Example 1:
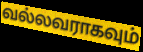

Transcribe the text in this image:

வல்லவராகவும்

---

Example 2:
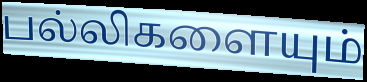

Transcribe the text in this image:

பல்லிகளையும்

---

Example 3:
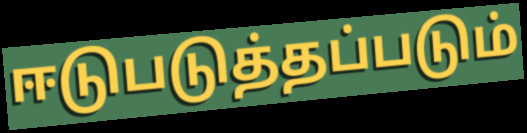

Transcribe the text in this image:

ஈடுபடுத்தப்படும்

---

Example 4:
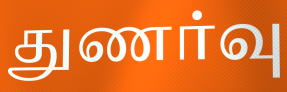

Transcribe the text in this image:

துணர்வு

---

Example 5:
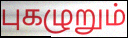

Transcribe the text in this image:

புகழுறும்